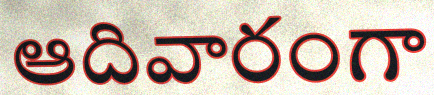
ఆదివారంగా